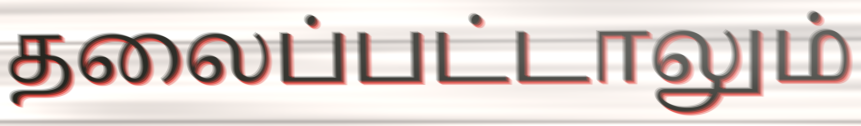
தலைப்பட்டாலும்